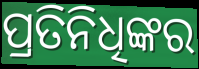
ପ୍ରତିନିଧିଙ୍କର